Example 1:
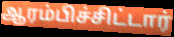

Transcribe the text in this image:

ஆரம்பிச்சிட்டார்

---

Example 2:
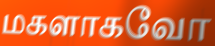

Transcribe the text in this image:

மகளாகவோ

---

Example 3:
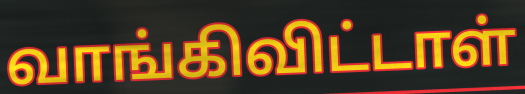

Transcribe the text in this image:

வாங்கிவிட்டாள்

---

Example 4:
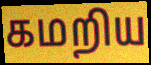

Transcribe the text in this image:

கமறிய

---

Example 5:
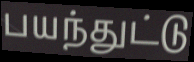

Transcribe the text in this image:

பயந்துட்டு